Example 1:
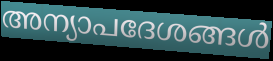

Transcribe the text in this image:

അന്യാപദേശങ്ങൾ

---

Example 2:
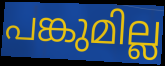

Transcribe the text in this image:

പങ്കുമില്ല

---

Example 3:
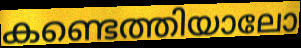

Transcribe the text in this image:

കണ്ടെത്തിയാലോ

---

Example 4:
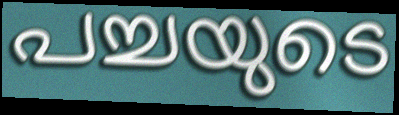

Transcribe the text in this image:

പച്ചയുടെ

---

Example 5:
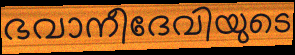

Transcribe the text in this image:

ഭവാനീദേവിയുടെ